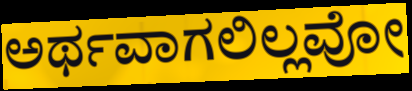
ಅರ್ಥವಾಗಲಿಲ್ಲವೋ